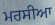
ਮਰਸੀਆ